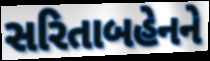
સરિતાબહેનને